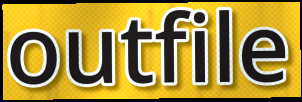
outfile